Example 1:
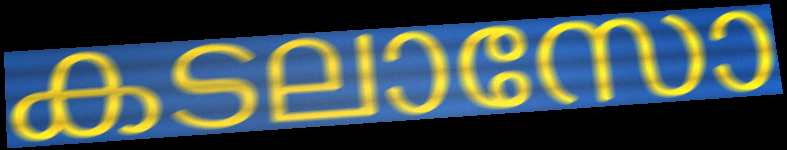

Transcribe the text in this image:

കടലാസോ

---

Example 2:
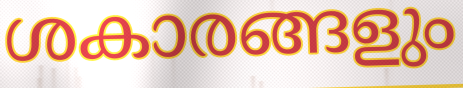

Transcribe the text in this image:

ശകാരങ്ങളും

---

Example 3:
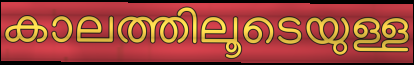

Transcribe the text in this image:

കാലത്തിലൂടെയുള്ള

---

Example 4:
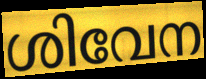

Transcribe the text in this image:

ശിവേന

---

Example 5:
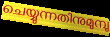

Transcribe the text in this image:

ചെയ്യുന്നതിനുമുമ്പു